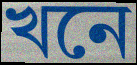
খনে